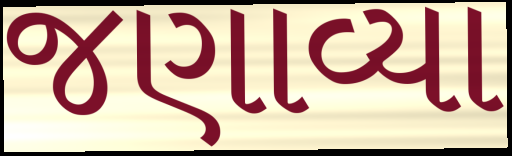
જણાવ્યા